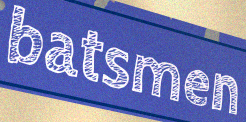
batsmen